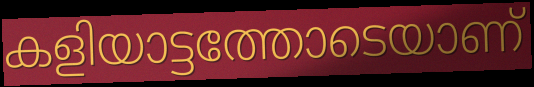
കളിയാട്ടത്തോടെയാണ്